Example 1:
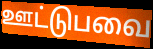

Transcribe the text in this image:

ஊட்டுபவை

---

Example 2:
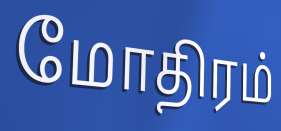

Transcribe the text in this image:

மோதிரம்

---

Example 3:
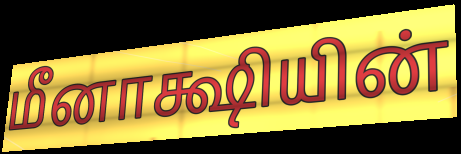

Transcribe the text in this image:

மீனாக்ஷியின்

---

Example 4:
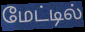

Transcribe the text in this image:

மேட்டில்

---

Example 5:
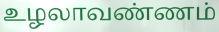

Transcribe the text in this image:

உழலாவண்ணம்